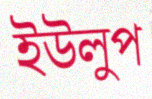
ইউলুপ